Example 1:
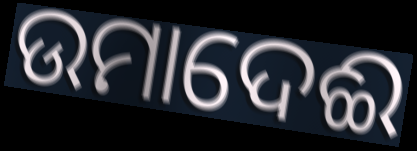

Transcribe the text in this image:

ଉମାଦେଈ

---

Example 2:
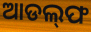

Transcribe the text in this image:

ଆଡଲ୍‌ଫ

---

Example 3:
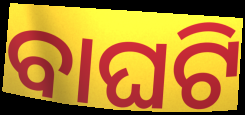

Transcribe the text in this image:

ବାଘଟି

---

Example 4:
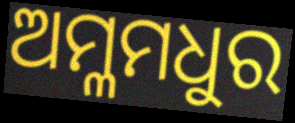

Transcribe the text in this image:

ଅମ୍ଳମଧୁର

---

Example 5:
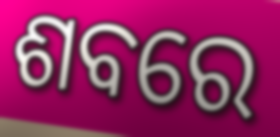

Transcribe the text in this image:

ଶବରେ